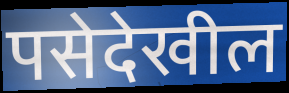
पसेदेखील